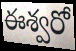
ఈశ్వరో